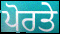
ਪੋਰਤੇ